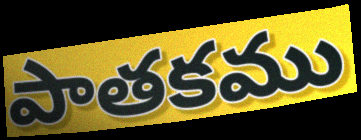
పాతకము